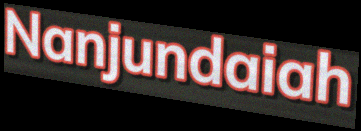
Nanjundaiah